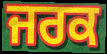
ਜਰਕ